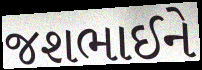
જશભાઈને